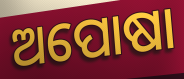
ଅପୋଷା